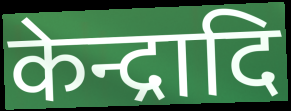
केन्द्रादि